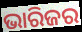
ଭାରିଜର